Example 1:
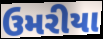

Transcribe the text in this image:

ઉમરીયા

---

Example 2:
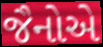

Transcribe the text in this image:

જૈનોએ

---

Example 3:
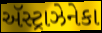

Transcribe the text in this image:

ઍસ્ટ્રાઝેનેકા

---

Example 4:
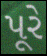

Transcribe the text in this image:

પૂરે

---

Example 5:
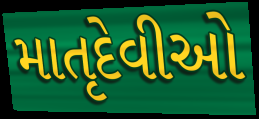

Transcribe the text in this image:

માતૃદેવીઓ